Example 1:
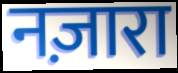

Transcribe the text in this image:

नज़ारा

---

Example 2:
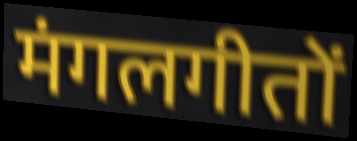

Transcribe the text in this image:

मंगलगीतों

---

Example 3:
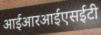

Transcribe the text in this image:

आईआरआईएसईटी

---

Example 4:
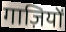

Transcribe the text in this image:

गाज़ियों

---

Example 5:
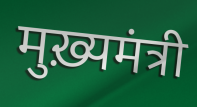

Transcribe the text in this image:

मुख़्यमंत्री